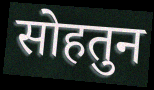
सोहतुन